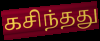
கசிந்தது